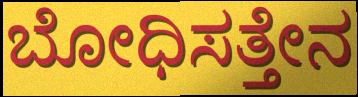
ಬೋಧಿಸತ್ತೇನ